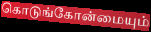
கொடுங்கோன்மையும்